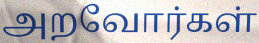
அறவோர்கள்